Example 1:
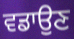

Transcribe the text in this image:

ਵਡਾਉਣ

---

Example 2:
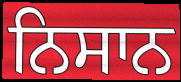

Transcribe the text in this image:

ਨਿਸਾਨ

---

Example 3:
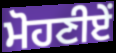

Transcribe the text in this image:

ਮੋਹਣੀਏਂ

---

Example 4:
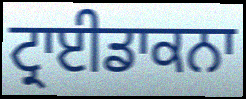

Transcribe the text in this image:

ਟ੍ਰਾਈਡਾਕਨਾ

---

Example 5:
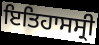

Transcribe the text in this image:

ਇਤਿਹਾਸਸ੍ਰੀ